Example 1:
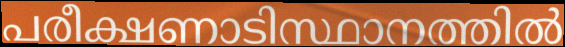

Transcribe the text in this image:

പരീക്ഷണാടിസ്ഥാനത്തിൽ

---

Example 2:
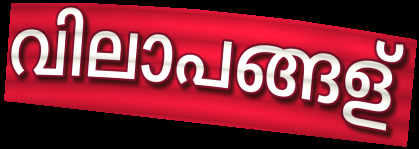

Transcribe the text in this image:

വിലാപങ്ങള്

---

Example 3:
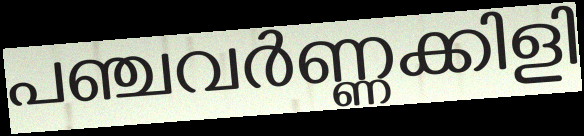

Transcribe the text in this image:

പഞ്ചവർണ്ണക്കിളി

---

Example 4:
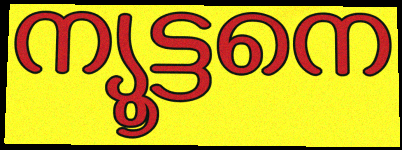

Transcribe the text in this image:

ന്യൂട്ടനെ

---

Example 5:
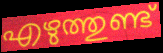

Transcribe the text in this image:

എഴുത്തുണ്ട്